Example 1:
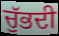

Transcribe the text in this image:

ਚੁੱਭਦੀ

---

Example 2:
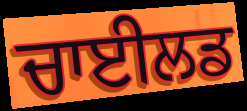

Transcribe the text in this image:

ਚਾਈਲਡ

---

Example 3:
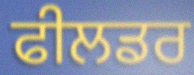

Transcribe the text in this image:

ਫੀਲਡਰ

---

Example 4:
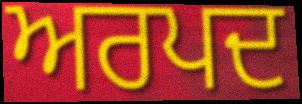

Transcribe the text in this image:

ਅਰਪਦ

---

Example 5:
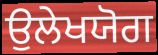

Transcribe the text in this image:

ਉਲੇਖਯੋਗ